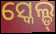
ସ୍କେଲ୍ଡ୍